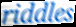
riddles